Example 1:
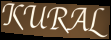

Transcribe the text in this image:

KURAL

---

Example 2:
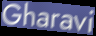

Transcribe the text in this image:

Gharavi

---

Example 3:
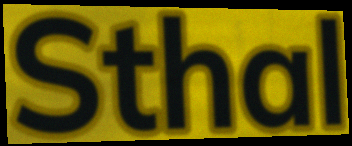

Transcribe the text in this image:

Sthal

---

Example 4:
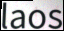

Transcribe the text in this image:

laos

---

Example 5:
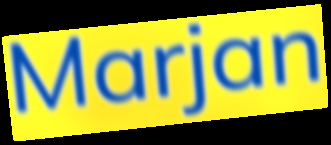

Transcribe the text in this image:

Marjan